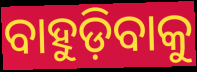
ବାହୁଡ଼ିବାକୁ